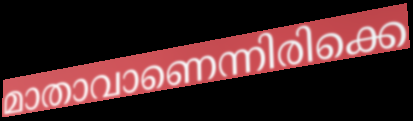
മാതാവാണെന്നിരിക്കെ